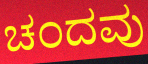
ಚಂದವು